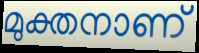
മുക്തനാണ്